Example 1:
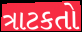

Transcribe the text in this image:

ત્રાટકતો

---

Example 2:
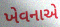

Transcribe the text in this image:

ખેવનાએ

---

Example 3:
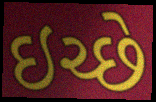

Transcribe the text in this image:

ઇચ્છે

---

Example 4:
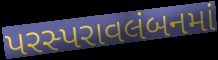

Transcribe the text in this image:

પરસ્પરાવલંબનમાં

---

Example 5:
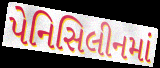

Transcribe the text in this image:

પેનિસિલીનમાં